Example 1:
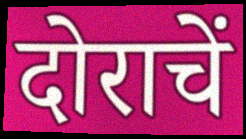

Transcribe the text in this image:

दोराचें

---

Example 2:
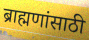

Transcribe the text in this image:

ब्राह्मणांसाठी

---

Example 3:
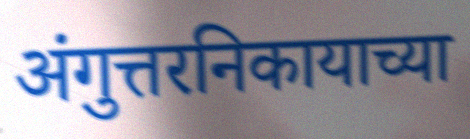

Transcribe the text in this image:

अंगुत्तरनिकायाच्या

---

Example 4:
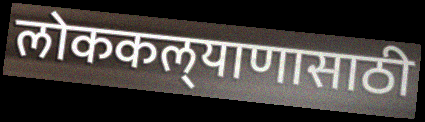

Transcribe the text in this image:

लोककल्याणासाठी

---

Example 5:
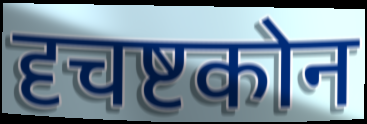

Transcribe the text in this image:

दृचष्टकोन